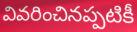
వివరించినప్పటికీ